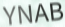
YNAB